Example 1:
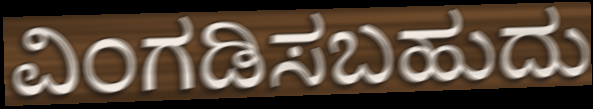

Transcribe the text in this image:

ವಿಂಗಡಿಸಬಹುದು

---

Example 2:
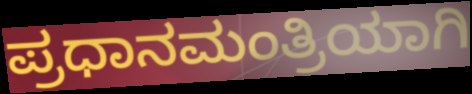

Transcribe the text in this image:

ಪ್ರಧಾನಮಂತ್ರಿಯಾಗಿ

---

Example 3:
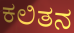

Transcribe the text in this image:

ಕಲಿತನ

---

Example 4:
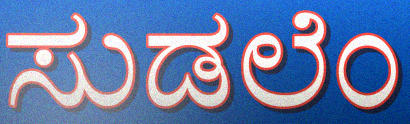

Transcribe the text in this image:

ಸುಡಲೆಂ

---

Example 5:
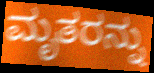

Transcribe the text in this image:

ಮೃತರನ್ನು